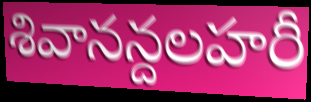
శివానన్దలహరీ